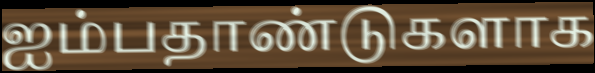
ஐம்பதாண்டுகளாக